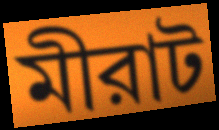
মীরাট